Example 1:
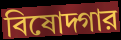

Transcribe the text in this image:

বিষোদ্গার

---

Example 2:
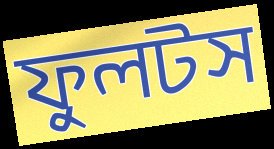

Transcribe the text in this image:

ফুলটস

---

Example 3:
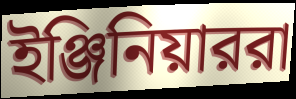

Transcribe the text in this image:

ইঞ্জিনিয়াররা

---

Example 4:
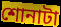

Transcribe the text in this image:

শোনাটা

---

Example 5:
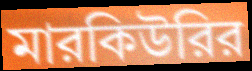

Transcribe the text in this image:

মারকিউরির